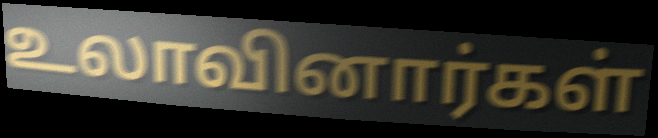
உலாவினார்கள்